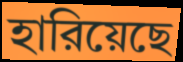
হারিয়েছে